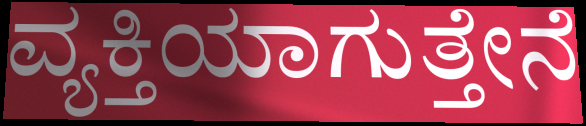
ವ್ಯಕ್ತಿಯಾಗುತ್ತೇನೆ